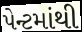
પેન્ટમાંથી